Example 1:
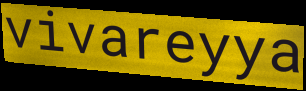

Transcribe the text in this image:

vivareyya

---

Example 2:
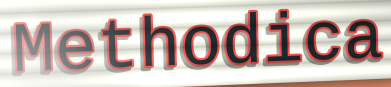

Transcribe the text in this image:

Methodica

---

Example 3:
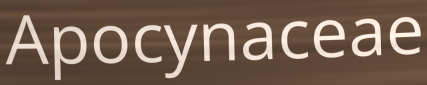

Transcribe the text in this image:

Apocynaceae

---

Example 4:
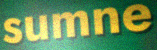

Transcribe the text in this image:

sumne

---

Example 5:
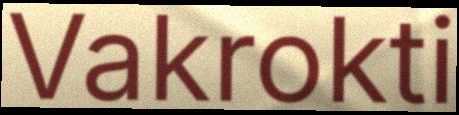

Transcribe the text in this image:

Vakrokti